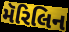
મૅરિલિન